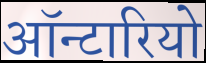
ऑन्टारियो